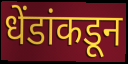
धेंडांकडून